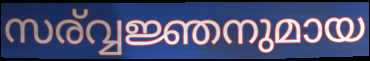
സര്വ്വജ്ഞനുമായ